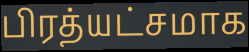
பிரத்யட்சமாக